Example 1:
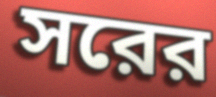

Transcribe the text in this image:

সরের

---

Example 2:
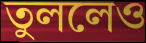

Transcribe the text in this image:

তুললেও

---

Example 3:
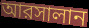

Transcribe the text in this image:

আরসালান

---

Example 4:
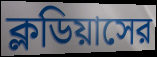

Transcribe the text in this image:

ক্লডিয়াসের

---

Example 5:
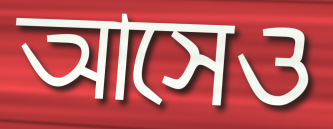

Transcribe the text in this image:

আসেও